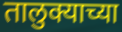
तालुक्याच्या